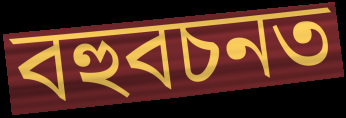
বহুবচনত